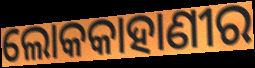
ଲୋକକାହାଣୀର